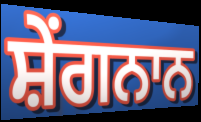
ਸ਼ੇਂਗਨਾਨ